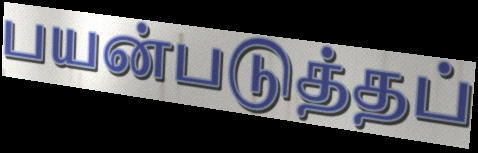
பயன்படுத்தப்